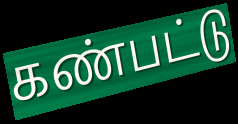
கண்பட்டு